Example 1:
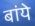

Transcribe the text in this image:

बांये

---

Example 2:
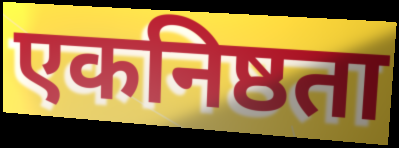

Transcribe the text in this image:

एकनिष्ठता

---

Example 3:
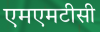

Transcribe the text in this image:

एमएमटीसी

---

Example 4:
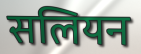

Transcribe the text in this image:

सलियन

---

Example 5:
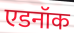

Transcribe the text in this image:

एडनॉक